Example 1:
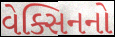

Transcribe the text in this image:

વેક્સિનનો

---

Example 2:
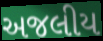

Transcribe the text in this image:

અજલીય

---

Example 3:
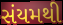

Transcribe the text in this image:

સંયમથી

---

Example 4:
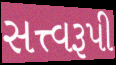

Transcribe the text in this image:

સત્ત્વરૂપી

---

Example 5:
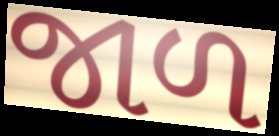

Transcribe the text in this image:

જાળ